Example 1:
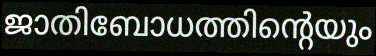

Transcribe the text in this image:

ജാതിബോധത്തിന്റെയും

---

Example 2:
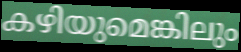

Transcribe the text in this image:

കഴിയുമെങ്കിലും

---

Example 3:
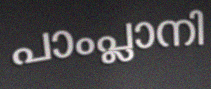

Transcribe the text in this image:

പാംപ്ലാനി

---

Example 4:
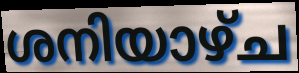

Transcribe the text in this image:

ശനിയാഴ്ച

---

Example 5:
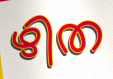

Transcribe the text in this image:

ഴിത